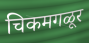
चिकमगळूर